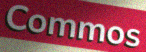
Commos